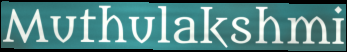
Muthulakshmi